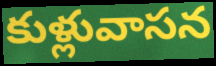
కుళ్లువాసన